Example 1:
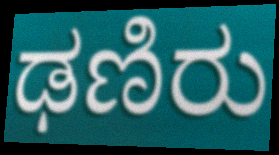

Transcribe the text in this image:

ಢಣಿರು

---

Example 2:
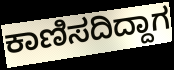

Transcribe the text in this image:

ಕಾಣಿಸದಿದ್ದಾಗ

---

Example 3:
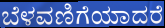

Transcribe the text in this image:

ಬೆಳವಣಿಗೆಯಾದರೆ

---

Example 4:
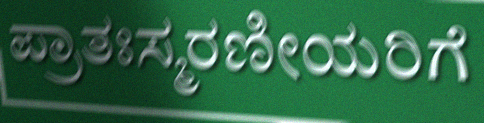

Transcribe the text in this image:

ಪ್ರಾತಃಸ್ಮರಣೀಯರಿಗೆ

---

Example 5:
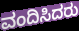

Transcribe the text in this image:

ವಂದಿಸಿದರು